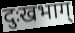
दुःखभाग्